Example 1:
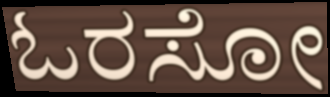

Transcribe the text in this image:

ಓರಸೋ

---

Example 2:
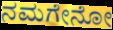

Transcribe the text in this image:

ನಮಗೇನೋ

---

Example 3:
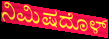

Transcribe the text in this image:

ನಿಮಿಷದೊಳ್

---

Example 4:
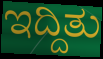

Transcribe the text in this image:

ಇದ್ದಿತು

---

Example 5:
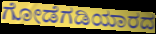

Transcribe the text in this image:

ಗೋಡೆಗಡಿಯಾರದ